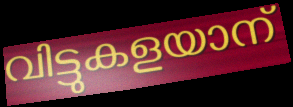
വിട്ടുകളയാന്